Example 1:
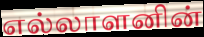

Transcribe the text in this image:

எல்லாளனின்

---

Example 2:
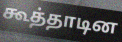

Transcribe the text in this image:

கூத்தாடின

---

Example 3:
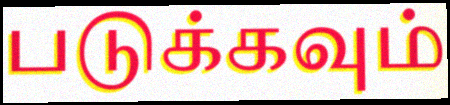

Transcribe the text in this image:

படுக்கவும்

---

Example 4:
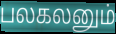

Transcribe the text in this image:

பலகலனும்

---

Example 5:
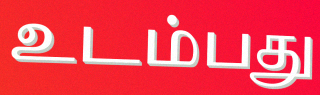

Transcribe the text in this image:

உடம்பது